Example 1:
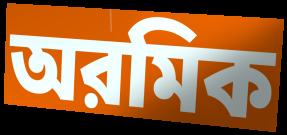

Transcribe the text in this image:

অরমিক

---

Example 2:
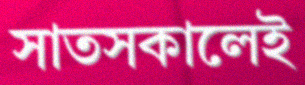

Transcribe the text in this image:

সাতসকালেই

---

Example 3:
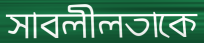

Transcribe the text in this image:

সাবলীলতাকে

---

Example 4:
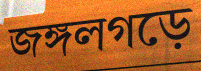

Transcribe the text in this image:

জঙ্গলগড়ে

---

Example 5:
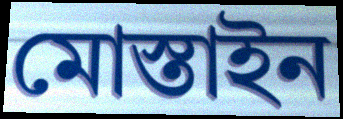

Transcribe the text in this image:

মোস্তাইন